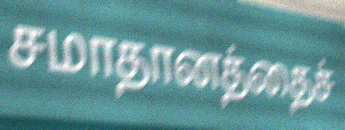
சமாதானத்தைச்